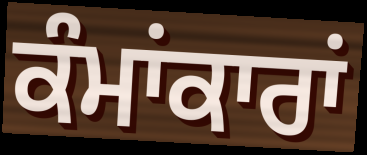
ਕੰਮਾਂਕਾਰਾਂ